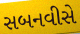
સબનવીસે